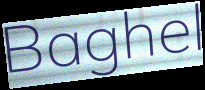
Baghel